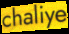
chaliye